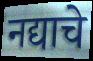
नद्याचे